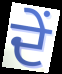
ਦੇਂ